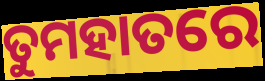
ତୁମହାତରେ